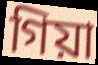
গিয়া